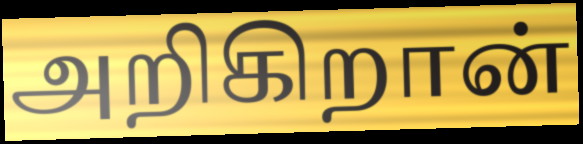
அறிகிறான்